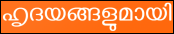
ഹൃദയങ്ങളുമായി